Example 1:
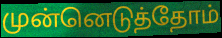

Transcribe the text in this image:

முன்னெடுத்தோம்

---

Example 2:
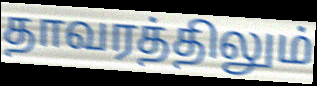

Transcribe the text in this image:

தாவரத்திலும்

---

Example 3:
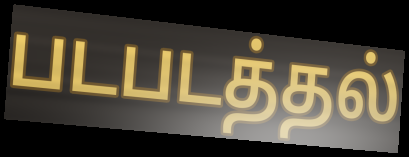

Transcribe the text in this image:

படபடத்தல்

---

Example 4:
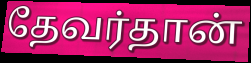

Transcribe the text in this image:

தேவர்தான்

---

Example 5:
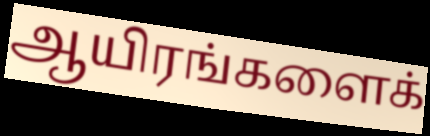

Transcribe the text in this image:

ஆயிரங்களைக்